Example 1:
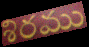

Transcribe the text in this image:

శిరము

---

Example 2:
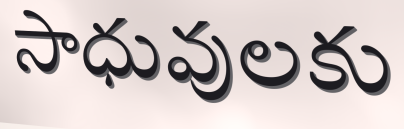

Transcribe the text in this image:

సాధువులకు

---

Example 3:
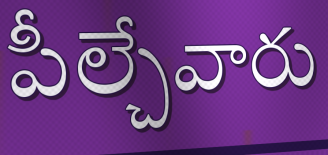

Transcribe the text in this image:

పీల్చేవారు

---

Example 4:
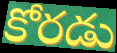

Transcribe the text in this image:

కోరడు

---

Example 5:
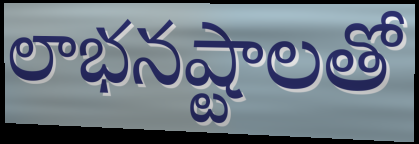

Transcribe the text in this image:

లాభనష్టాలతో